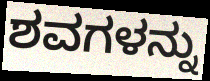
ಶವಗಳನ್ನು